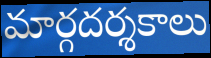
మార్గదర్శకాలు